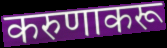
करुणाकरू